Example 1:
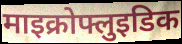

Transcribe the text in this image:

माइक्रोफ्लुइडिक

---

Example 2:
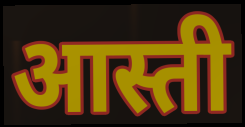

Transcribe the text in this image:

आस्ती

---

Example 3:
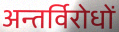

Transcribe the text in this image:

अन्तर्विरोधों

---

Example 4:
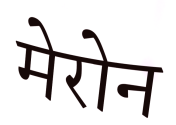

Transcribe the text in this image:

मेरोन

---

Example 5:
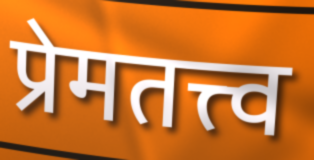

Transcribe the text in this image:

प्रेमतत्त्व